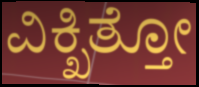
ವಿಕ್ಖಿತ್ತೋ